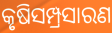
କୃଷିସମ୍ପ୍ରସାରଣ